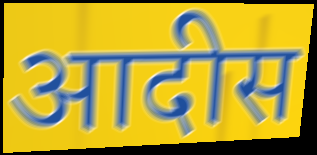
आदीस